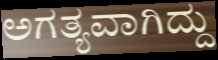
ಅಗತ್ಯವಾಗಿದ್ದು